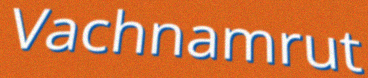
Vachnamrut